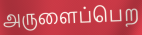
அருளைப்பெற